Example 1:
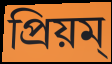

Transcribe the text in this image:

প্রিয়ম্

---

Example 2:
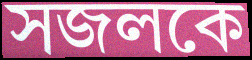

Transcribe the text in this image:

সজলকে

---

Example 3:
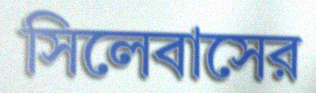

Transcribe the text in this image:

সিলেবাসের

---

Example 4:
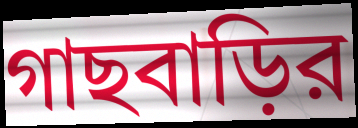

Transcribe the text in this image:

গাছবাড়ির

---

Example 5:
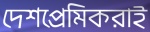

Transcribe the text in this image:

দেশপ্রেমিকরাই